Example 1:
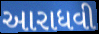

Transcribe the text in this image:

આરાધવી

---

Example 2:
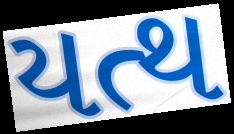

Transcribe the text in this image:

યત્થ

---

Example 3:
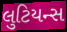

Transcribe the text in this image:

લુટિયન્સ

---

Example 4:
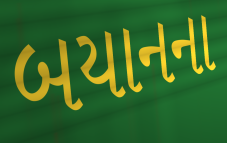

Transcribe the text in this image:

બયાનના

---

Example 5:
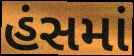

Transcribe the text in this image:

હંસમાં